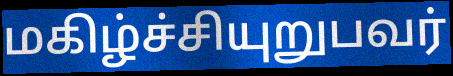
மகிழ்ச்சியுறுபவர்